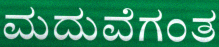
ಮದುವೆಗಂತ